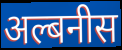
अल्बनीस